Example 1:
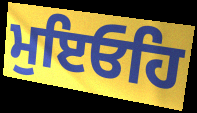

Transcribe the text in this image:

ਮੁਇਓਹਿ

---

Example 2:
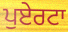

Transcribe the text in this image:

ਪੁਏਰਟਾ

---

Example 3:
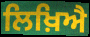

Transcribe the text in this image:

ਲਿਖ਼ਿਐ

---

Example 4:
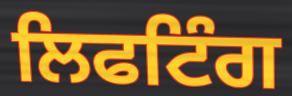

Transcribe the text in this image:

ਲਿਫਟਿੰਗ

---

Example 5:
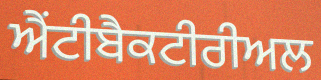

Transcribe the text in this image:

ਐਂਟੀਬੈਕਟੀਰੀਅਲ